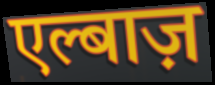
एल्बाज़